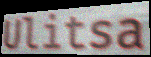
Ulitsa